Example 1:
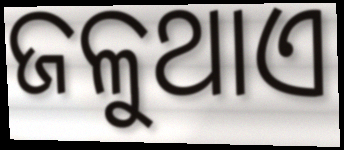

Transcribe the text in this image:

ଜଳୁଥାଏ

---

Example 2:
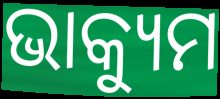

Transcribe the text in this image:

ଭାକ୍ୟୁମ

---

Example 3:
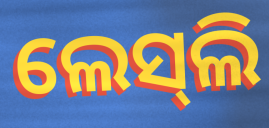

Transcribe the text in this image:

ଲେସ୍‍ଲି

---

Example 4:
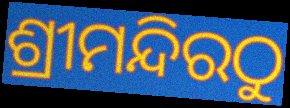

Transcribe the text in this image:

ଶ୍ରୀମନ୍ଦିରଠୁ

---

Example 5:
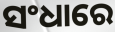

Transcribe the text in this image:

ସଂଧାରେ